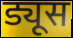
ड्यूस